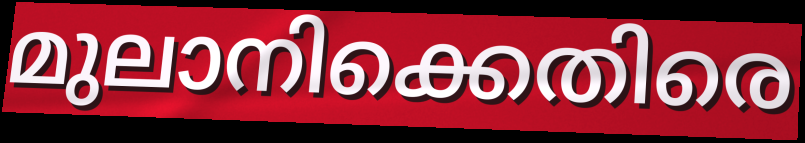
മുലാനിക്കെതിരെ